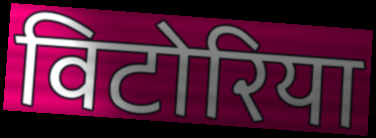
विटोरिया